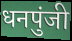
धनपुंजी